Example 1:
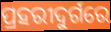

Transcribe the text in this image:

ପ୍ରହରୀଦୁର୍ଗରେ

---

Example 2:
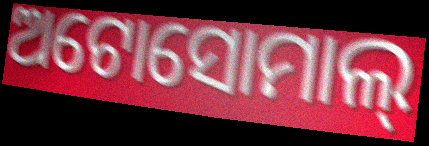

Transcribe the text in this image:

ଅଟୋସୋମାଲ୍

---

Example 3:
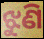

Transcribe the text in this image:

ଝୁଣି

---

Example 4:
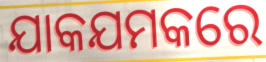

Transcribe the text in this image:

ଯାକଯମକରେ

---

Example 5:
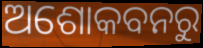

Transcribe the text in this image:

ଅଶୋକବନରୁ